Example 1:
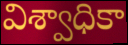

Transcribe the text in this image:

విశ్వాధికా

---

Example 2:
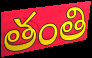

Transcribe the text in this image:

తంతి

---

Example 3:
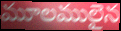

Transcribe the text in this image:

మూలములైన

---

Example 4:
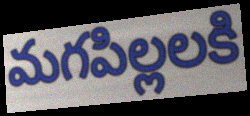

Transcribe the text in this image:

మగపిల్లలకి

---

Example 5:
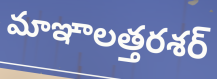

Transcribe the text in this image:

మాఞాలత్తరశర్